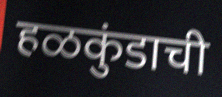
हळकुंडाची